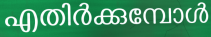
എതിർക്കുമ്പോൾ